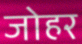
जोहर